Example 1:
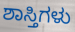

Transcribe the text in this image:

ಶಾಸ್ತಿಗಳು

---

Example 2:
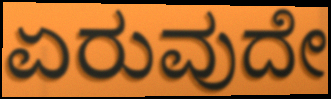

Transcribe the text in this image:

ಏರುವುದೇ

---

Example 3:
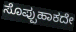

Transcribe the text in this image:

ಸೊಪ್ಪುಹಾಕದೇ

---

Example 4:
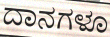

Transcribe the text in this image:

ದಾನಗಳೂ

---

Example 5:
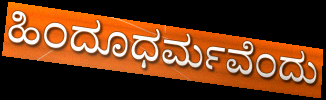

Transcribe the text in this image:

ಹಿಂದೂಧರ್ಮವೆಂದು